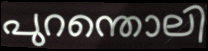
പുറന്തൊലി